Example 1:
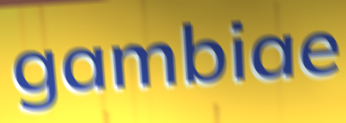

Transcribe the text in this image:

gambiae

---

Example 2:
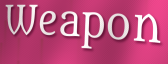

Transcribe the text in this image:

Weapon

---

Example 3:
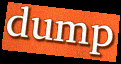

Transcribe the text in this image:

dump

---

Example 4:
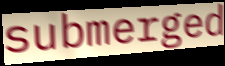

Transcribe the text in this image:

submerged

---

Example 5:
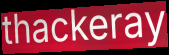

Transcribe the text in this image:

thackeray